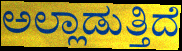
ಅಲ್ಲಾಡುತ್ತಿದೆ